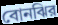
বোনঝির